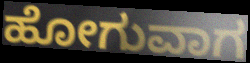
ಹೋಗುವಾಗ